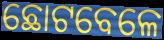
ଛୋଟବେଳେ